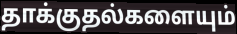
தாக்குதல்களையும்